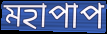
মহাপাপ